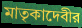
মাতৃকাদেবীর